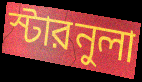
স্টারনুলা